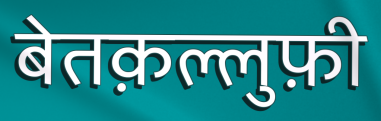
बेतक़ल्लुफ़ी